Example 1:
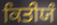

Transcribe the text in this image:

ਕਿਤੀਯੰ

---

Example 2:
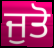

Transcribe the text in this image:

ਜੁਤੋ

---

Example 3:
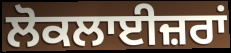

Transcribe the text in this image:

ਲੋਕਲਾਈਜ਼ਰਾਂ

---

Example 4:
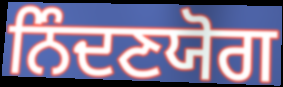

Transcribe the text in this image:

ਨਿੰਦਣਯੋਗ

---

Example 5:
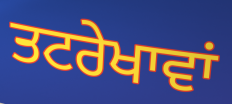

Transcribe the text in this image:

ਤਟਰੇਖਾਵਾਂ